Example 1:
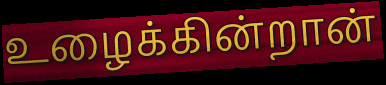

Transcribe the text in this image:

உழைக்கின்றான்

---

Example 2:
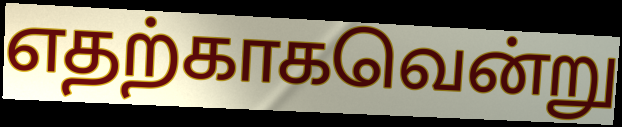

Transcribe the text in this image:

எதற்காகவென்று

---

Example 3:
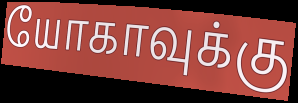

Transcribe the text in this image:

யோகாவுக்கு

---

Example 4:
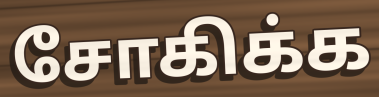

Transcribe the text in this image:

சோகிக்க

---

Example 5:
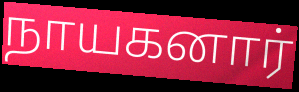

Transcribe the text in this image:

நாயகனார்